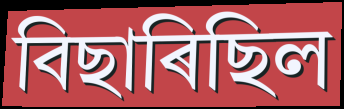
বিছাৰিছিল